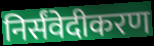
निर्संवेदीकरण